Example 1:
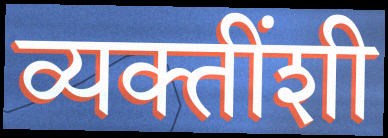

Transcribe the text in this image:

व्यक्तींशी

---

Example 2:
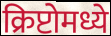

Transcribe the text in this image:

क्रिप्टोमध्ये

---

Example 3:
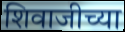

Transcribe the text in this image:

शिवाजीच्या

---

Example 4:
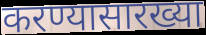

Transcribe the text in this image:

करण्यासारख्या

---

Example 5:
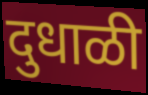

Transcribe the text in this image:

दुधाळी